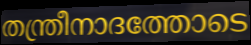
തന്ത്രീനാദത്തോടെ